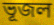
ভূজল